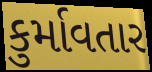
કુર્માવતાર